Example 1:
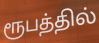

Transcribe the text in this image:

ரூபத்தில்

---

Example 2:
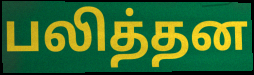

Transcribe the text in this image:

பலித்தன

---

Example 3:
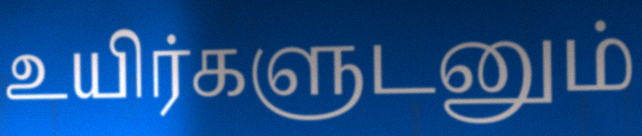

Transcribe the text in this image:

உயிர்களுடனும்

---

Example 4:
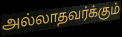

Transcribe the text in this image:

அல்லாதவர்க்கும்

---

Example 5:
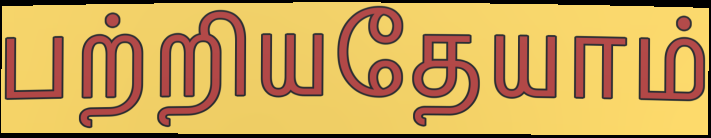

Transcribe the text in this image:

பற்றியதேயாம்